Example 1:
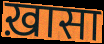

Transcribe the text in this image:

ख़ासा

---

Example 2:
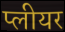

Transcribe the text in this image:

प्लीयर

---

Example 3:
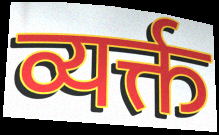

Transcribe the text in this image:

व्यर्क्त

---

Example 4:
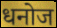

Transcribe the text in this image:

धनोज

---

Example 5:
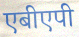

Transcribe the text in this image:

एबीएपी